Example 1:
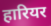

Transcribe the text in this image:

हारियर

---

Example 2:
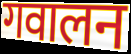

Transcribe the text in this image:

गवालन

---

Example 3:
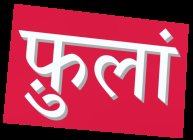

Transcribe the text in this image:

फ़ुलां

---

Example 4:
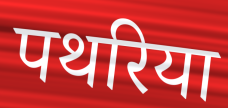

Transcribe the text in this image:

पथरिया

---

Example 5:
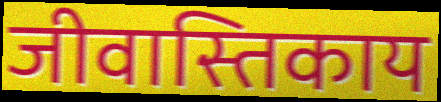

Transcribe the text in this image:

जीवास्तिकाय